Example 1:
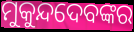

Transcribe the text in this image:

ମୁକୁନ୍ଦଦେବଙ୍କର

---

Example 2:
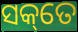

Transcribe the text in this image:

ସକ୍‌ତେ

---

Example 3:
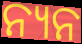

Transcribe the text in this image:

ନ୍ୟନ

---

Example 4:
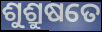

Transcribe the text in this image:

ଶୁଶ୍ରୁଷତେ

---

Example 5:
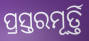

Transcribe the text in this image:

ପ୍ରସ୍ତରମୂର୍ତ୍ତି